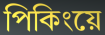
পিকিংয়ে